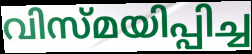
വിസ്മയിപ്പിച്ച